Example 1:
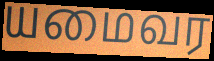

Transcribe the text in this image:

யமைவர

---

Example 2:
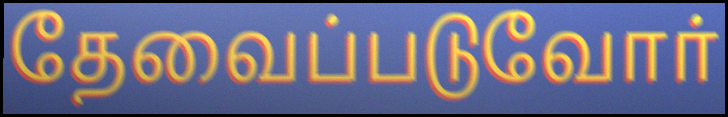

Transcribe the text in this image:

தேவைப்படுவோர்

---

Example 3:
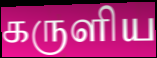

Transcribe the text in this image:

கருளிய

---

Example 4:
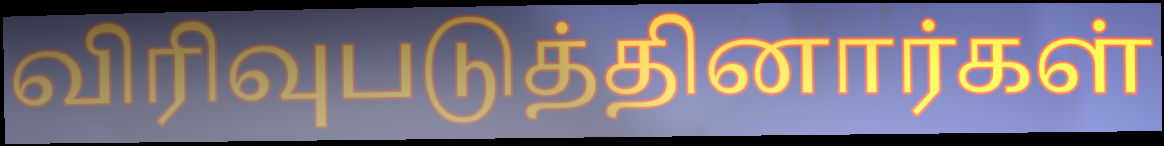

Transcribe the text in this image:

விரிவுபடுத்தினார்கள்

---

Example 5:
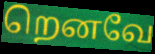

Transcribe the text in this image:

றெனவே